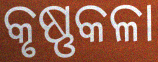
କୃଷ୍ଣକଳା